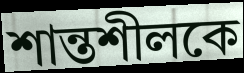
শান্তশীলকে